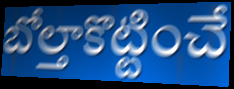
బోల్తాకొట్టించే